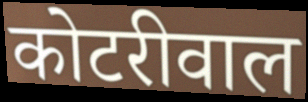
कोटरीवाल